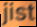
jist